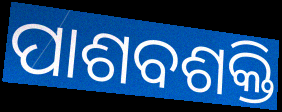
ପାଶବଶକ୍ତି